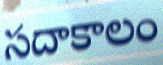
సదాకాలం